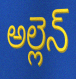
అల్లెన్